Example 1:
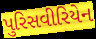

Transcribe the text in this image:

પુરિસવીરિયેન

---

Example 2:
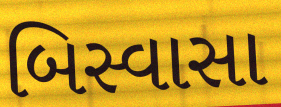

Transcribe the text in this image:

બિસ્વાસા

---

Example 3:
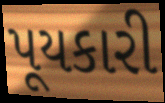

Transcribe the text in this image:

પૂયકારી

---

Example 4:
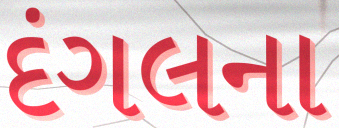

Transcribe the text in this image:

દંગલના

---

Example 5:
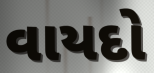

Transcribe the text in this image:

વાયદો